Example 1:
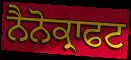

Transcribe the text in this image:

ਨੈਨੋਕ੍ਰਾਫਟ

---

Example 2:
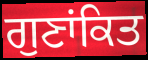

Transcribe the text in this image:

ਗੁਣਾਂਕਿਤ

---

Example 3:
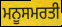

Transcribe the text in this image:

ਮਨੂਸਮਰਤੀ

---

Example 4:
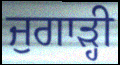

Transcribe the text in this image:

ਜੁਗਾੜ੍ਹੀ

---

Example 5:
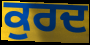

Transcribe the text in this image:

ਕੁਰਦ